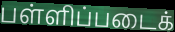
பள்ளிப்படைக்